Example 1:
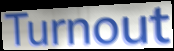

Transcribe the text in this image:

Turnout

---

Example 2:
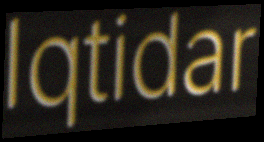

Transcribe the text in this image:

Iqtidar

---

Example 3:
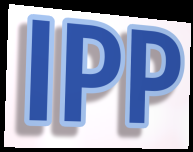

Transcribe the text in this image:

IPP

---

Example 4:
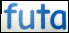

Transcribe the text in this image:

futa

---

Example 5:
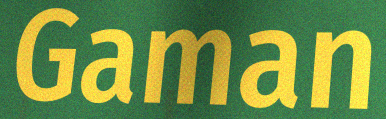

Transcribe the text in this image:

Gaman